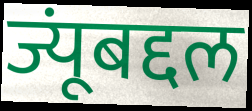
ज्यूंबद्दल